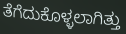
ತೆಗೆದುಕೊಳ್ಳಲಾಗಿತ್ತು